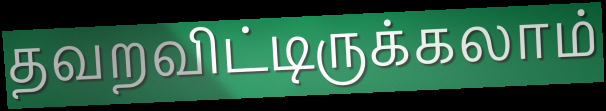
தவறவிட்டிருக்கலாம்